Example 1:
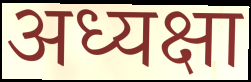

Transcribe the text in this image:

अध्यक्षा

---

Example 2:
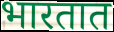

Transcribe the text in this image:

भारतात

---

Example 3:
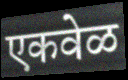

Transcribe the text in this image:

एकवेळ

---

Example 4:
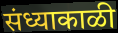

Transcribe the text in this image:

संध्‍याकाळी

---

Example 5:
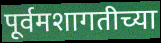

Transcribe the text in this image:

पूर्वमशागतीच्या